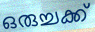
ഒരുച്ചക്ക്